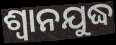
ଶ୍ଵାନଯୁଦ୍ଧ